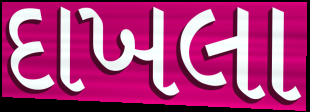
દાખલા